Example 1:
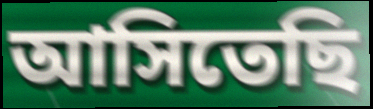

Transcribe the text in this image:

আসিতেছি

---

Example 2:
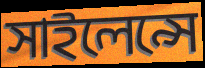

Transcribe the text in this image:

সাইলেন্সে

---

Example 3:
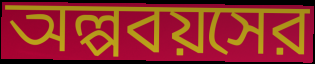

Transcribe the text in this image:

অল্পবয়সের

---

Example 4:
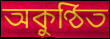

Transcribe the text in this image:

অকুণ্ঠিত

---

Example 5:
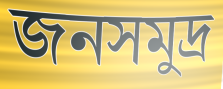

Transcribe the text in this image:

জনসমুদ্র